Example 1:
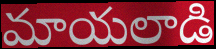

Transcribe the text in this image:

మాయలాడి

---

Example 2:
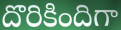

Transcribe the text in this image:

దొరికిందిగా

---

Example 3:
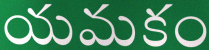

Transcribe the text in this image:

యమకం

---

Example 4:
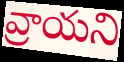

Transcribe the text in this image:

వ్రాయని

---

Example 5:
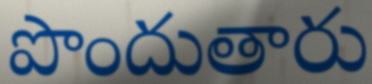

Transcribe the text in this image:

పొందుతారు